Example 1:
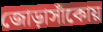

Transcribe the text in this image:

জোড়াসাঁকোয়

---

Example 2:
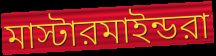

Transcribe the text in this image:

মাস্টারমাইন্ডরা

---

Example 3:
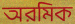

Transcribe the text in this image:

অরমিক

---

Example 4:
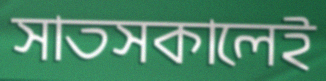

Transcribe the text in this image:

সাতসকালেই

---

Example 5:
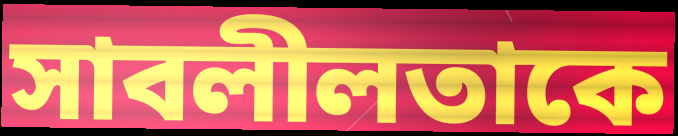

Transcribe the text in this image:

সাবলীলতাকে